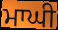
ਮਾਘੀ